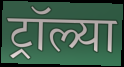
ट्रॉल्या